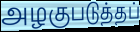
அழகுபடுத்தப்